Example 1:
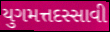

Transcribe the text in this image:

યુગમત્તદસ્સાવી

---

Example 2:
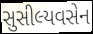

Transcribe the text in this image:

સુસીલ્યવસેન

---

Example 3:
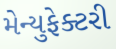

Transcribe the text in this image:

મેન્યુફેક્ટરી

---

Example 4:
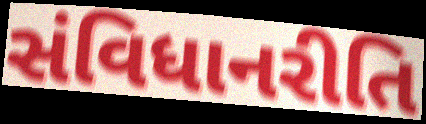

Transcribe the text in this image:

સંવિધાનરીતિ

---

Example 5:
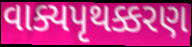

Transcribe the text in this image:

વાક્યપૃથક્કરણ